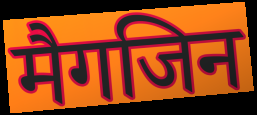
मैगजिन